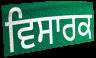
ਵਿਸਾਰਕ